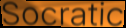
Socratic